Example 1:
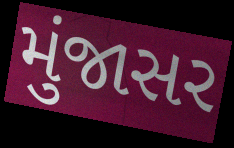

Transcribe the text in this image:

મુંજાસર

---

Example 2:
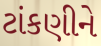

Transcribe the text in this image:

ટાંકણીને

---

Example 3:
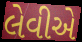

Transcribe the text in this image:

લેવીએ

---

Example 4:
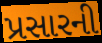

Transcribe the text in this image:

પ્રસારની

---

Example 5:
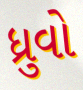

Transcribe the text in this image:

ધ્રુવો